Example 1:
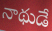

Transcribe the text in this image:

నాథుడే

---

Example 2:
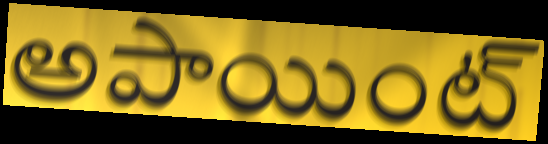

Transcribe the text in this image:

అపాయింట్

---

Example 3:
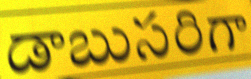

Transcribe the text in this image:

డాబుసరిగా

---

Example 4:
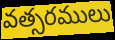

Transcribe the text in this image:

వత్సరములు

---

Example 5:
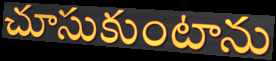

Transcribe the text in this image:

చూసుకుంటాను